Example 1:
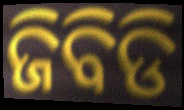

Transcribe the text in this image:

ଜିବିଡି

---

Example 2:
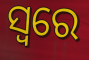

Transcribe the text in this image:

ସ୍ବରେ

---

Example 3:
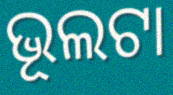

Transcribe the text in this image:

ଭୂଲଟା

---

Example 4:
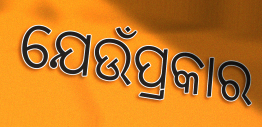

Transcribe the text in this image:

ଯେଉଁପ୍ରକାର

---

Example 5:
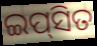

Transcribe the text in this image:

ଇପ୍‍ସିତ